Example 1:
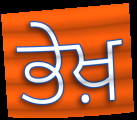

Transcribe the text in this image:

ਭੇਖ਼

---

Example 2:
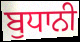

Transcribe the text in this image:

ਬੁਧਾਨੀ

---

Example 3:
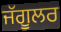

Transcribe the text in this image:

ਜੱਗੂਲਰ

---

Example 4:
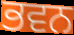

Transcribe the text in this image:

ਭਵਨ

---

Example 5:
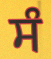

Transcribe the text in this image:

ਸੰ